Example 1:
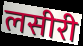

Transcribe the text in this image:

लसीरी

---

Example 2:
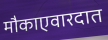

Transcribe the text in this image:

मौकाएवारदात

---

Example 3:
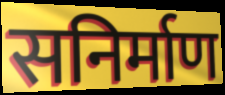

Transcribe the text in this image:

सनिर्माण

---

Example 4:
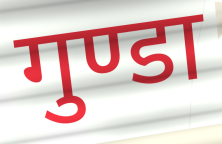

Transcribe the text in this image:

गुण्डा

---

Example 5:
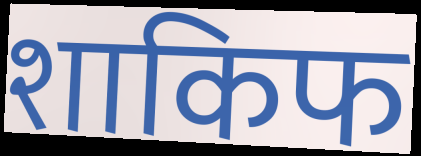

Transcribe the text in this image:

शाकिफ